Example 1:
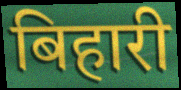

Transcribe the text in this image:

बिहारी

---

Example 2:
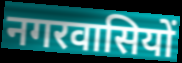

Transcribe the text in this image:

नगरवासियों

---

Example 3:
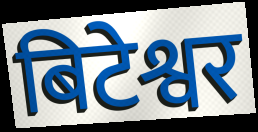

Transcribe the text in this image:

बिटेश्वर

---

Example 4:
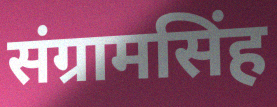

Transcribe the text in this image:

संग्रामसिंह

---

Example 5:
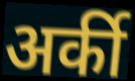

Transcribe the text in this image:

अर्की